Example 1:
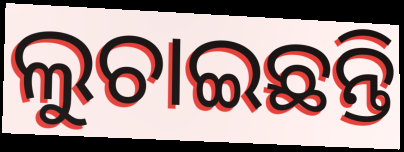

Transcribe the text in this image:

ଲୁଚାଇଛନ୍ତି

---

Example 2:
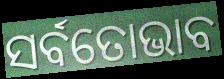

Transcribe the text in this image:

ସର୍ବତୋଭାବ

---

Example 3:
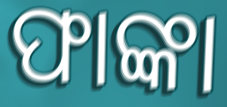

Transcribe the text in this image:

ଫାଙ୍କା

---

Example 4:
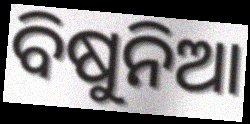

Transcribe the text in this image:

ବିଷୁନିଆ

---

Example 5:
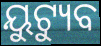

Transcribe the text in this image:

ୟୁଟ୍ୟୁବ